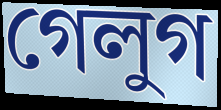
গেলুগ